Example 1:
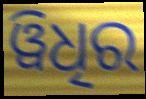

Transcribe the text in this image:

ୱିଧିର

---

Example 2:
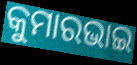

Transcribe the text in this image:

କୁମାରଭାଇ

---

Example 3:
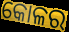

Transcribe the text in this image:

କୋଳର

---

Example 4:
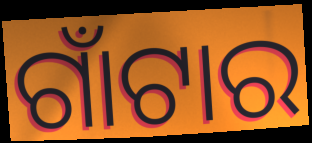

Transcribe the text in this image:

ଗାଁଟାର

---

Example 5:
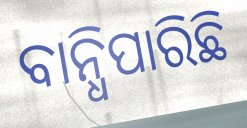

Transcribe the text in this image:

ବାନ୍ଧିପାରିଛି